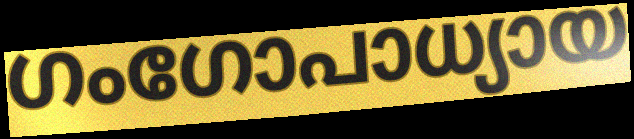
ഗംഗോപാധ്യായ